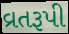
વ્રતરૂપી